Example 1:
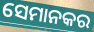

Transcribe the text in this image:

ସେମାନକର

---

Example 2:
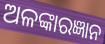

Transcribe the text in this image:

ଅଳଙ୍କାରଜ୍ଞାନ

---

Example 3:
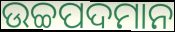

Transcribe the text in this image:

ଉଚ୍ଚପଦମାନ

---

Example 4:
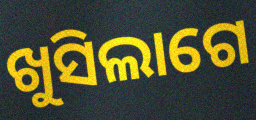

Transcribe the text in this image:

ଖୁସିଲାଗେ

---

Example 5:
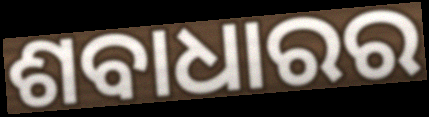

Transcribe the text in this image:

ଶବାଧାରର